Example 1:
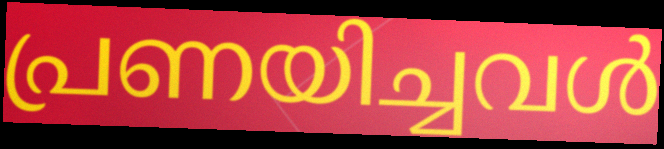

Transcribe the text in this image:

പ്രണയിച്ചവൾ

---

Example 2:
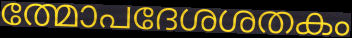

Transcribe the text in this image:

ത്മോപദേശശതകം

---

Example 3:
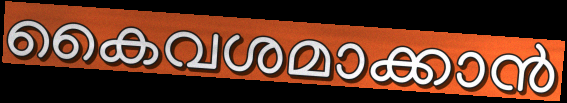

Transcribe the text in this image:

കൈവശമാക്കാൻ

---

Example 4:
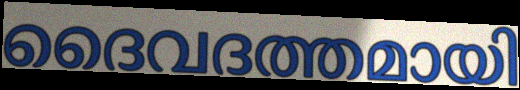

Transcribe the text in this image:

ദൈവദത്തമായി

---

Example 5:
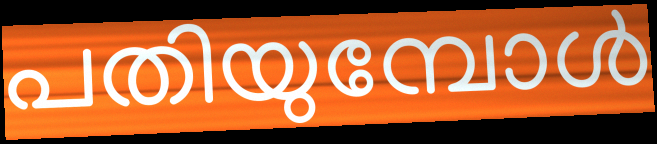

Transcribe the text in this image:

പതിയുമ്പോൾ